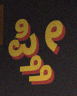
ಪ್ತ್ತೀ